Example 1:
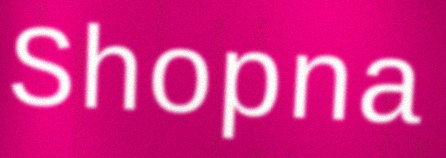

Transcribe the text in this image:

Shopna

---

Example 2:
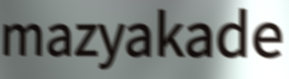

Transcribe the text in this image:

mazyakade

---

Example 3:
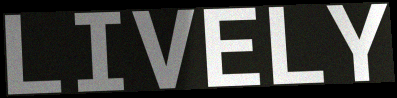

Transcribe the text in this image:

LIVELY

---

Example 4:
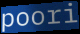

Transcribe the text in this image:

poori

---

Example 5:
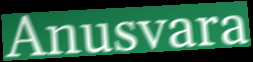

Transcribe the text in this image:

Anusvara